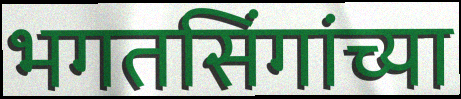
भगतसिंगांच्या